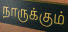
நாருக்கும்